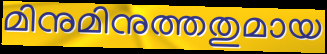
മിനുമിനുത്തതുമായ